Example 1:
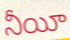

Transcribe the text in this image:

నీయీ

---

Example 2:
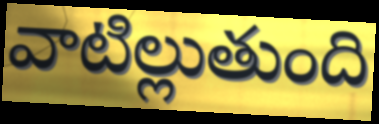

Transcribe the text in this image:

వాటిల్లుతుంది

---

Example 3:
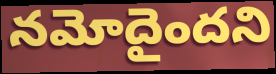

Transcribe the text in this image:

నమోదైందని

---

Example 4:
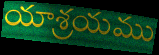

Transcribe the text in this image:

యాశ్రయము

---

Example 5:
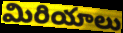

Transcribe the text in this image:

మిరియాలు